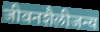
जीवनशैलीजन्य